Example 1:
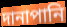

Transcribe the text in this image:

দানাপানি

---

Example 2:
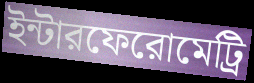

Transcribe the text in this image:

ইন্টারফেরোমেট্রি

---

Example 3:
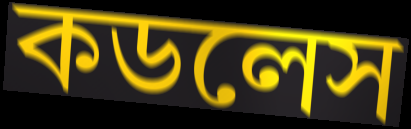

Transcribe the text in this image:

কডলেস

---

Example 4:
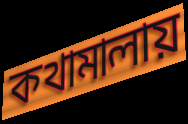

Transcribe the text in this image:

কথামালায়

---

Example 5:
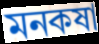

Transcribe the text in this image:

মনকষা